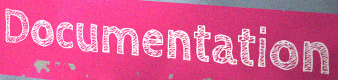
Documentation